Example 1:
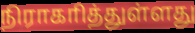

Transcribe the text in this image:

நிராகரித்துள்ளது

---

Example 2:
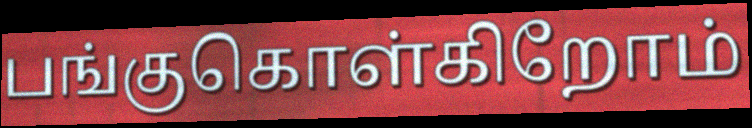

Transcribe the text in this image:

பங்குகொள்கிறோம்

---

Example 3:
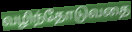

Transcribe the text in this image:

வழிந்தோடுவதை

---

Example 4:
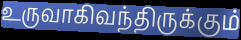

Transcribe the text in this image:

உருவாகிவந்திருக்கும்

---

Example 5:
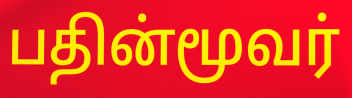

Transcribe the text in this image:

பதின்மூவர்